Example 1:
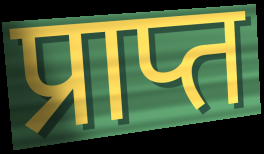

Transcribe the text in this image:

प्राप्‍त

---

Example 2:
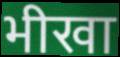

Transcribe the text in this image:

भीखा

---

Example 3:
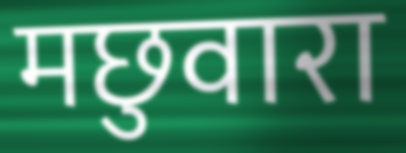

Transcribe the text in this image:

मछुवारा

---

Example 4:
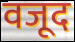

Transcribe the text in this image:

वजूद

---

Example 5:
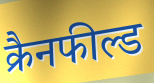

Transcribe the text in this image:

क्रैनफील्ड